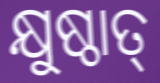
କ୍ଷୁଷ୍ଠାତ୍